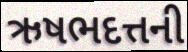
ઋષભદત્તની